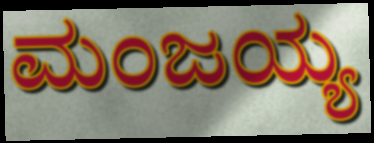
ಮಂಜಯ್ಯ